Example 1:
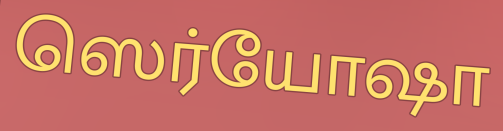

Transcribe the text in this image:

ஸெர்யோஷா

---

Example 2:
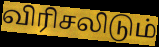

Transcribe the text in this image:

விரிசலிடும்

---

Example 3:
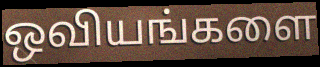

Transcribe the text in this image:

ஒவியங்களை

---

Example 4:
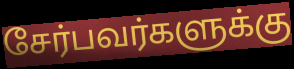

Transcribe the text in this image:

சேர்பவர்களுக்கு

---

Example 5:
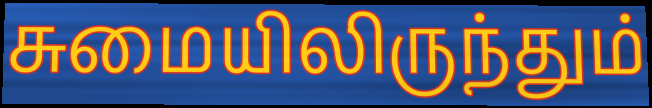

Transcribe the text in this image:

சுமையிலிருந்தும்